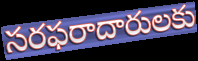
సరఫరాదారులకు